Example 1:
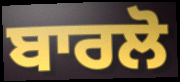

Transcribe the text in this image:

ਬਾਰਲੋ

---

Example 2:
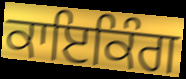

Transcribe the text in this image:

ਕਾਇਕਿੰਗ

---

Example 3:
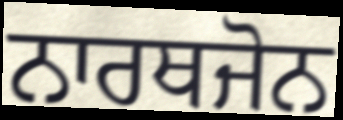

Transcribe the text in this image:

ਨਾਰਥਜੋਨ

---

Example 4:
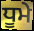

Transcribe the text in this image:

ਧੂਮੇ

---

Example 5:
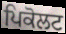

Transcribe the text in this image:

ਪਿਕੋਲਟ